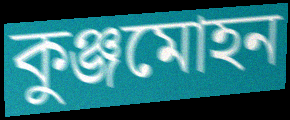
কুঞ্জমোহন